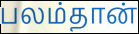
பலம்தான்